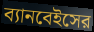
ব্যানবেইসের